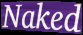
Naked